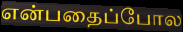
என்பதைப்போல